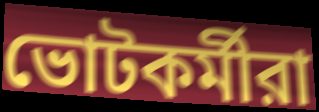
ভোটকর্মীরা